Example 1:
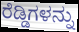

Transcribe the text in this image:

ರೆಡ್ಡಿಗಳನ್ನು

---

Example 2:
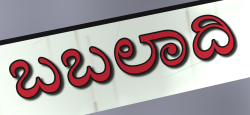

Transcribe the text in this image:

ಬಬಲಾದಿ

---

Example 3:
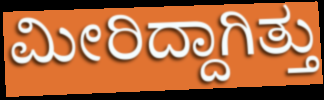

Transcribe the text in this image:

ಮೀರಿದ್ದಾಗಿತ್ತು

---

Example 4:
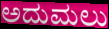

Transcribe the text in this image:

ಅದುಮಲು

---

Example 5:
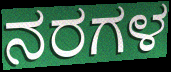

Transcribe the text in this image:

ನರಗಳ